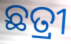
ଛତ୍ରୀ